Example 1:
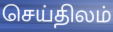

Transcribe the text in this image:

செய்திலம்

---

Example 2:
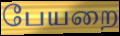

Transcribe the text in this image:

பேயறை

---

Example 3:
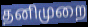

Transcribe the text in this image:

தனிமுறை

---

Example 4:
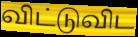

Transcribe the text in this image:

விட்டுவிட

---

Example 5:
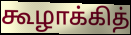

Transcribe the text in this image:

கூழாக்கித்